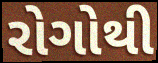
રોગોથી